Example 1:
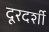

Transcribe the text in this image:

दूरदर्शी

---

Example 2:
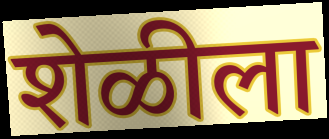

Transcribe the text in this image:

शेळीला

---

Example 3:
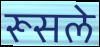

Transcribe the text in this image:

रूसले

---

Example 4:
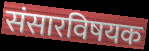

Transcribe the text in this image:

संसारविषयक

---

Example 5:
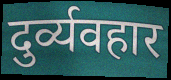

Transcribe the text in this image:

दुर्व्यवहार